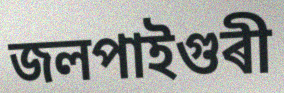
জলপাইগুৰী